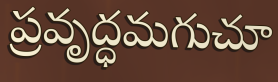
ప్రవృద్ధమగుచూ